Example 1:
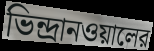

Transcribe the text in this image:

ভিন্দ্রানওয়ালের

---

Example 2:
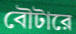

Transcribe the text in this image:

বৌটারে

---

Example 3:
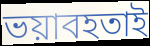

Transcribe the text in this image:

ভয়াবহতাই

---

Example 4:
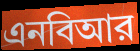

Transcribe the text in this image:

এনবিআর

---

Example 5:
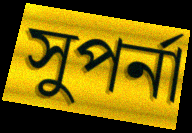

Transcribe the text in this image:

সুপর্না